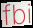
fbi